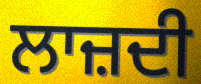
ਲਾਜ਼ਦੀ